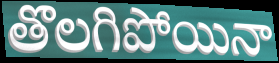
తొలగిపోయినా